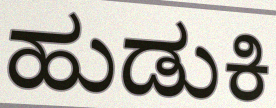
ಹುಡುಕಿ